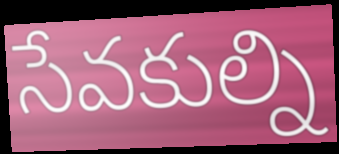
సేవకుల్ని